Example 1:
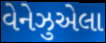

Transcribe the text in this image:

વેનેઝુએલા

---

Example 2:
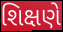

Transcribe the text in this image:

શિક્ષણે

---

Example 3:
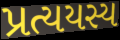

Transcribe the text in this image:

પ્રત્યયસ્ય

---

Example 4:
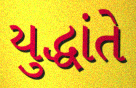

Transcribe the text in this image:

યુદ્ધાંતે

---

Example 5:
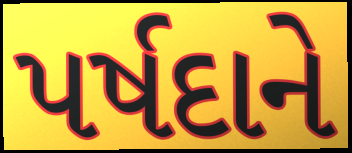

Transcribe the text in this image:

પર્ષદાને